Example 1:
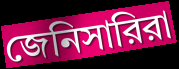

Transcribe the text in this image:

জেনিসারিরা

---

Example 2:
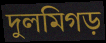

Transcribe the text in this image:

দুলমিগড়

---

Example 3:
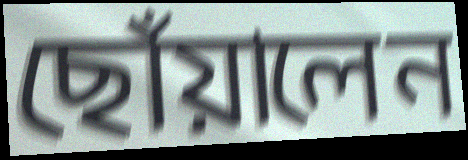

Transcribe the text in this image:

ছোঁয়ালেন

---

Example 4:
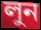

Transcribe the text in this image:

লুন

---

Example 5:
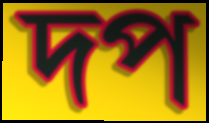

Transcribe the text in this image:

দপ